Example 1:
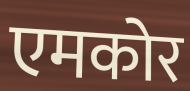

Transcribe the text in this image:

एमकोर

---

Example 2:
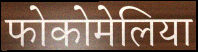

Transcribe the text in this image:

फोकोमेलिया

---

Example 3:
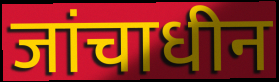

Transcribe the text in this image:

जांचाधीन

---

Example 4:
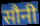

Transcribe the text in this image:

सौनी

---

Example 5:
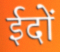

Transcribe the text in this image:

ईदों